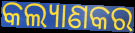
କଲ୍ୟାଣକର